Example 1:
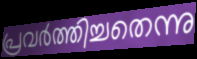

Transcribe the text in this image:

പ്രവർത്തിച്ചതെന്നു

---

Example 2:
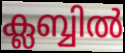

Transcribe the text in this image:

ക്ലബ്ബിൽ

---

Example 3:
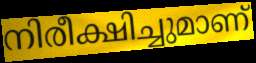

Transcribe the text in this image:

നിരീക്ഷിച്ചുമാണ്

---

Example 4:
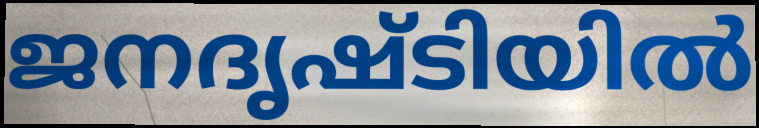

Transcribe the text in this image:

ജനദൃഷ്ടിയിൽ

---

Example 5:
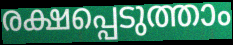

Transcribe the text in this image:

രക്ഷപ്പെടുത്താം